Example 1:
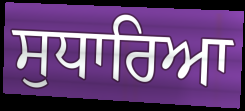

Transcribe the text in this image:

ਸੁਧਾਰਿਆ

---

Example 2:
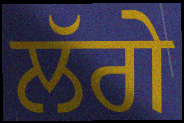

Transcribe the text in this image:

ਲੱਗੇ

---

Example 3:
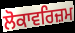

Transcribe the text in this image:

ਲੋਕਾਵਰਿਜ਼ਮ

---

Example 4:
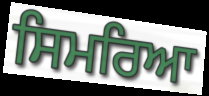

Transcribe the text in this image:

ਸਿਮਰਿਆ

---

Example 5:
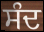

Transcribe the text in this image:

ਸੰਦ